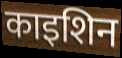
काइशिन